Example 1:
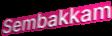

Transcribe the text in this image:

Sembakkam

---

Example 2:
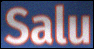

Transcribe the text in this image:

Salu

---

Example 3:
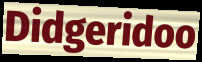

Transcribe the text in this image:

Didgeridoo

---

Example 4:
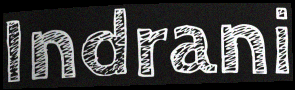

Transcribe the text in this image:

Indrani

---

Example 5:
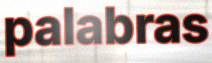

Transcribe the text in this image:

palabras